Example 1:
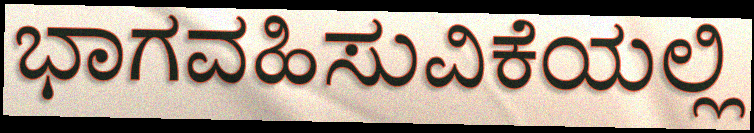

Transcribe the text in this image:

ಭಾಗವಹಿಸುವಿಕೆಯಲ್ಲಿ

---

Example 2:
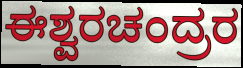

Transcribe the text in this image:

ಈಶ್ವರಚಂದ್ರರ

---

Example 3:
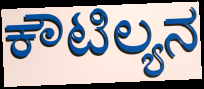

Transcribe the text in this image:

ಕೌಟಿಲ್ಯನ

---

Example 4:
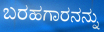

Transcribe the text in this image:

ಬರಹಗಾರನನ್ನು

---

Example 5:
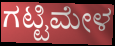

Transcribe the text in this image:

ಗಟ್ಟಿಮೇಳ